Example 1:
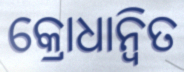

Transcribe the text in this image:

କ୍ରୋଧାନ୍ୱିତ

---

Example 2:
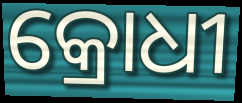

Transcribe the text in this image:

କ୍ରୋଧୀ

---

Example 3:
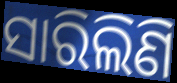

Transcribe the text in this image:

ସାରିଲିଣି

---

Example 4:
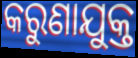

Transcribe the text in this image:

କରୁଣାଯୁକ୍ତ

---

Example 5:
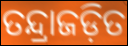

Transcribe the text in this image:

ତନ୍ଦ୍ରାଜଡ଼ିତ